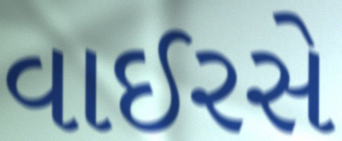
વાઈરસે